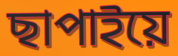
ছাপাইয়ে